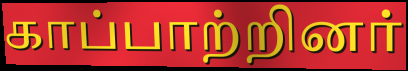
காப்பாற்றினர்